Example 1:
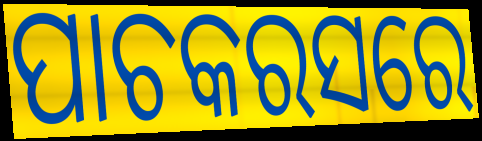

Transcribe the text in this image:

ପାଚକରସରେ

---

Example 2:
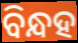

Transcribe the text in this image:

ବିନ୍ଧହ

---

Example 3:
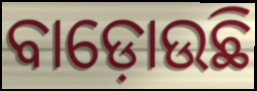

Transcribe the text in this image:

ବାଡ଼ୋଉଛି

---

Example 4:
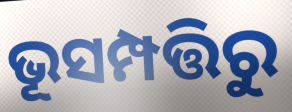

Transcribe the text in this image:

ଭୂସମ୍ପତ୍ତିରୁ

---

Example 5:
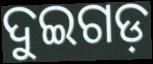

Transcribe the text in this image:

ଦୁଇଗଡ଼